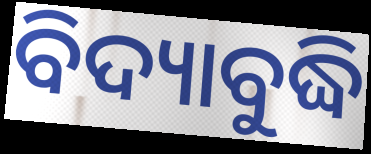
ବିଦ୍ୟାବୁଦ୍ଧି